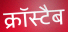
क्रॉस्टैब